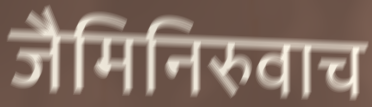
जैमिनिरुवाच